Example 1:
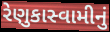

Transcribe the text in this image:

રેણુકાસ્વામીનું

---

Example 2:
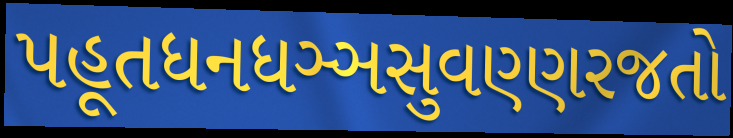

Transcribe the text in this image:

પહૂતધનધઞ્ઞસુવણ્ણરજતો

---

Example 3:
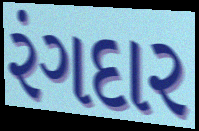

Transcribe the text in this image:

રંગદાર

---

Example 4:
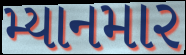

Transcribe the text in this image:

મ્યાનમાર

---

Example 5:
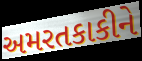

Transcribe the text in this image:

અમરતકાકીને